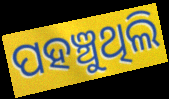
ପହଞ୍ଚୁଥିଲି